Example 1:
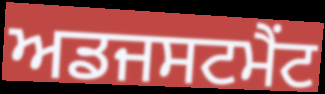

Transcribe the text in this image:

ਅਡਜਸਟਮੈਂਟ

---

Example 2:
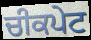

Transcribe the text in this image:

ਚੀਕਪੇਟ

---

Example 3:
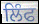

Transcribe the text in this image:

ਲਿੰਫ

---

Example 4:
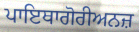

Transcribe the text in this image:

ਪਾਇਥਾਗੋਰੀਅਨਜ਼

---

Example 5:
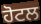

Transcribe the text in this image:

ਹੋਟਲ